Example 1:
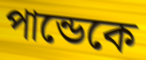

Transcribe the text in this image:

পান্ডেকে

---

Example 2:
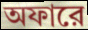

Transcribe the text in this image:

অফারে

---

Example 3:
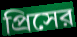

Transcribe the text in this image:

প্রিসের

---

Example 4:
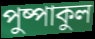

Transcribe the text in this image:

পুষ্পাকুল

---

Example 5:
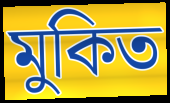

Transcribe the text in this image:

মুকিত